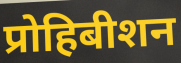
प्रोहिबीशन